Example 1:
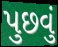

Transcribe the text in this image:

પુછવું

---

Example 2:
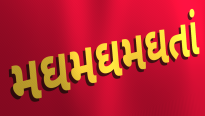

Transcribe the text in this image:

મઘમઘમઘતાં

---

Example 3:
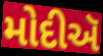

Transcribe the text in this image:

મોદીઍ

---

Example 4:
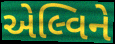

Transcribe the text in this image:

એલ્વિને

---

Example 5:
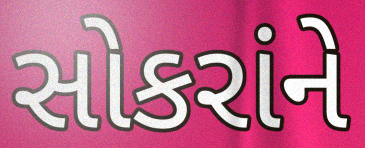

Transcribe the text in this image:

સોકરાંને